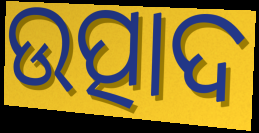
ଉତ୍ପାଦ